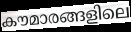
കൗമാരങ്ങളിലെ